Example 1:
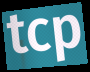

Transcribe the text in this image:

tcp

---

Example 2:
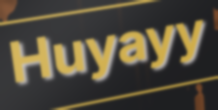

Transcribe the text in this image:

Huyayy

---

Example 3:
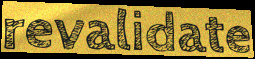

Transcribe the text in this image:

revalidate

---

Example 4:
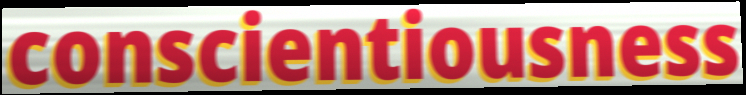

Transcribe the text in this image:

conscientiousness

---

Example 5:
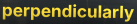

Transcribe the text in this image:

perpendicularly